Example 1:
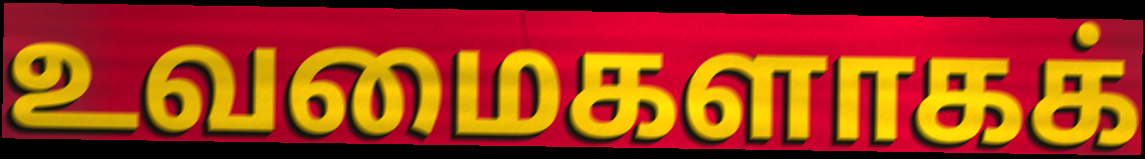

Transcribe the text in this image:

உவமைகளாகக்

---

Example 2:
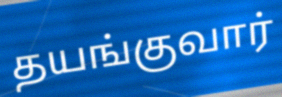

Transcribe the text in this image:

தயங்குவார்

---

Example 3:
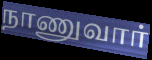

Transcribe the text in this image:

நாணுவார்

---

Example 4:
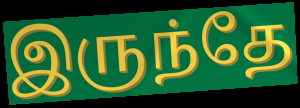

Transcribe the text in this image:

இருந்தே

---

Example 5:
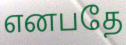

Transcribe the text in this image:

எனபதே